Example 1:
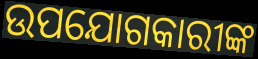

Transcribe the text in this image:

ଉପଯୋଗକାରୀଙ୍କ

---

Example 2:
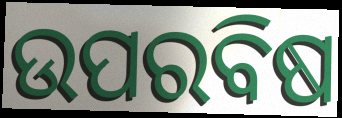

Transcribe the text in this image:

ଉପରବିଷ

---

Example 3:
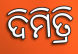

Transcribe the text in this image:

ଦିମିତ୍ରି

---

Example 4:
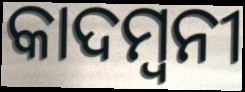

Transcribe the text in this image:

କାଦମ୍ୱନୀ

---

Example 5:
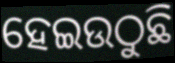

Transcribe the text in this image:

ହେଇଉଠୁଛି